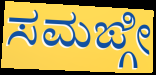
ಸಮಙ್ಗೀ